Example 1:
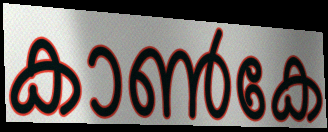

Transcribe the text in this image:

കാൺകേ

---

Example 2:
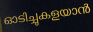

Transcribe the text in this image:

ഓടിച്ചുകളയാൻ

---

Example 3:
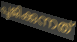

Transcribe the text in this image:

പൂജിക്കുന്നത്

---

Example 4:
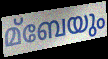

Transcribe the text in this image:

മ്ബേയും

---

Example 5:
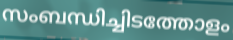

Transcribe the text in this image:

സംബന്ധിച്ചിടത്തോളം